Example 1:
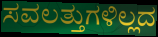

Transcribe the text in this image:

ಸವಲತ್ತುಗಳಿಲ್ಲದ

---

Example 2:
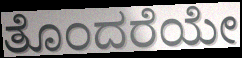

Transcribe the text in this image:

ತೊಂದರೆಯೇ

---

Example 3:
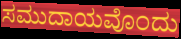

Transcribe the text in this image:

ಸಮುದಾಯವೊಂದು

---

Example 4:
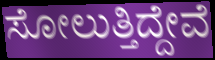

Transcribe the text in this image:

ಸೋಲುತ್ತಿದ್ದೇವೆ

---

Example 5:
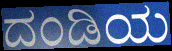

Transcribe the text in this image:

ದಂಡಿಯ